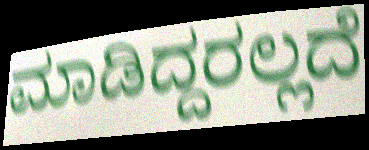
ಮಾಡಿದ್ದರಲ್ಲದೆ